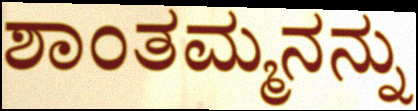
ಶಾಂತಮ್ಮನನ್ನು